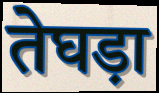
तेघड़ा